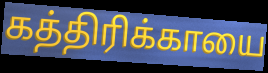
கத்திரிக்காயை